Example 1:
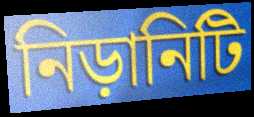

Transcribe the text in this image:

নিড়ানিটি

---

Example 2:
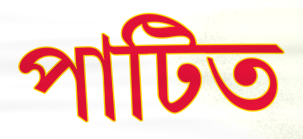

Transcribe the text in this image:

পাটিত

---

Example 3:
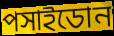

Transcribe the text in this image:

পসাইডোন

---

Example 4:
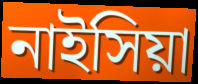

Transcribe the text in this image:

নাইসিয়া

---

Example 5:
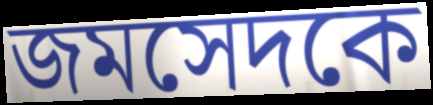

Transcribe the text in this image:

জমসেদকে